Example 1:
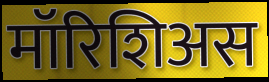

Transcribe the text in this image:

मॉरिशिअस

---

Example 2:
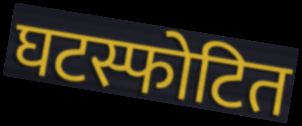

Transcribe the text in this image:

घटस्फोटित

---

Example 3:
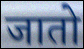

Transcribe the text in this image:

जातो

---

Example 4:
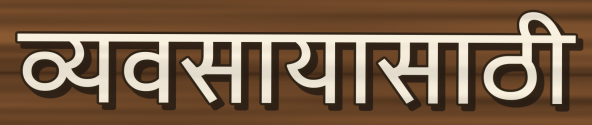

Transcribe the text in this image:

व्यवसायासाठी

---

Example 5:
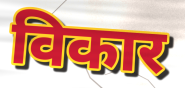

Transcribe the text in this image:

विकार